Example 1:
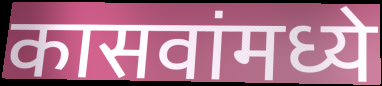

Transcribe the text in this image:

कासवांमध्ये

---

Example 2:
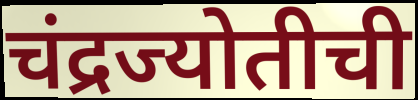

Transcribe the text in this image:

चंद्रज्योतीची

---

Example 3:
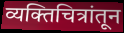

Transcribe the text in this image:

व्यक्तिचित्रांतून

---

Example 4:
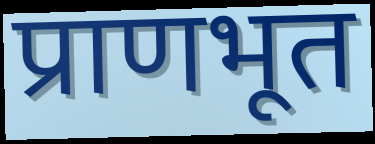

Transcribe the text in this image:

प्राणभूत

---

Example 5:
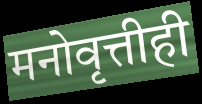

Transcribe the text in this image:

मनोवृत्तीही